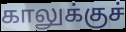
காலுக்குச்